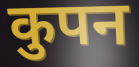
कुपन